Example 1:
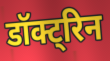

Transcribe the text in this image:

डॉक्ट्रिन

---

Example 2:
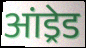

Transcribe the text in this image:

आंड्रेड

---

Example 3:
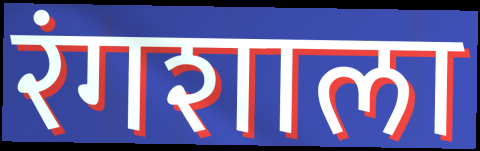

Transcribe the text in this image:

रंगशाला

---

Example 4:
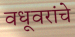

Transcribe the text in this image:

वधूवरांचे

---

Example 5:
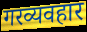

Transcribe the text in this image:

गरव्यवहार